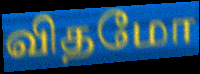
விதமோ